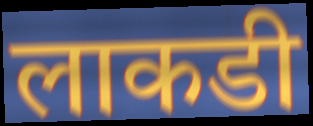
लाकडी